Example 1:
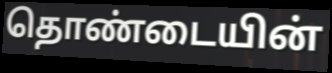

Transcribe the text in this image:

தொண்டையின்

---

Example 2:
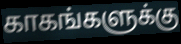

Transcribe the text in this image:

காகங்களுக்கு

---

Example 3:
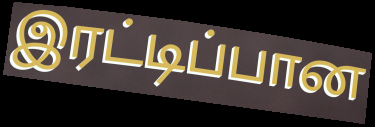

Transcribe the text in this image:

இரட்டிப்பான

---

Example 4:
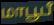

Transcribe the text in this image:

மாபூபீ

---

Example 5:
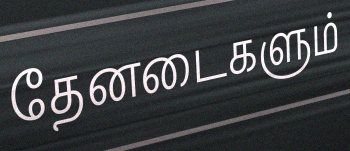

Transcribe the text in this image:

தேனடைகளும்